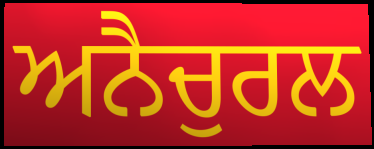
ਅਨੈਚੁਰਲ